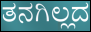
ತನಗಿಲ್ಲದ